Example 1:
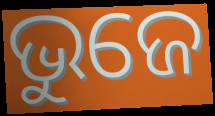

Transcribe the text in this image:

ଭୁଜେ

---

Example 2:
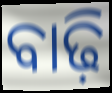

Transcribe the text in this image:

ବାଢ଼ି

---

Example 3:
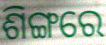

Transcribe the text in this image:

ଶିଙ୍ଗରେ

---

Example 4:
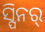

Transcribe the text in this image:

ସ୍ପିନର୍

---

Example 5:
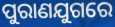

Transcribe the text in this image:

ପୁରାଣଯୁଗରେ